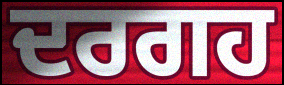
ਦਰਗਹ